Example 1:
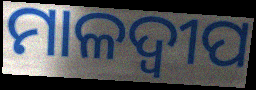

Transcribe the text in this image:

ମାଳଦ୍ଵୀପ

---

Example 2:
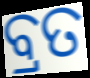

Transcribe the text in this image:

ବ୍ରତ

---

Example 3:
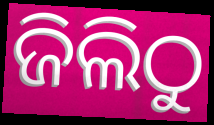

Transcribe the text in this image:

ଜିଲିଠୁ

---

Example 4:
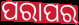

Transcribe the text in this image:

ପରାପର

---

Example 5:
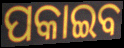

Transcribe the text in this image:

ପକାଇବ